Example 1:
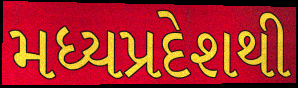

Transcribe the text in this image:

મધ્યપ્રદેશથી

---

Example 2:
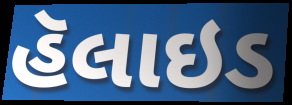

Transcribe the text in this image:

હૅલાઇડ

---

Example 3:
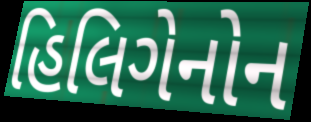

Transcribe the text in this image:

હિલિગેનોન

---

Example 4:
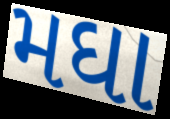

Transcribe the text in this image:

મઘા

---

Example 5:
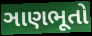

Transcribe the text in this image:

ઞાણભૂતો